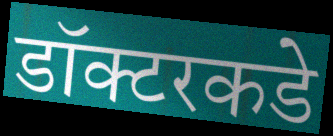
डॉक्टरकडे